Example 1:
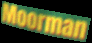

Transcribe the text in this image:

Moorman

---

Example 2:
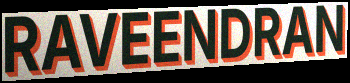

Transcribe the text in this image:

RAVEENDRAN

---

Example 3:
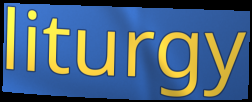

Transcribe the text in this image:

liturgy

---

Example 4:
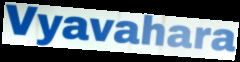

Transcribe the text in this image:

Vyavahara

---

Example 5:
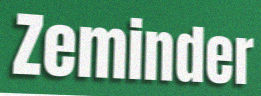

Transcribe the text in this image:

Zeminder